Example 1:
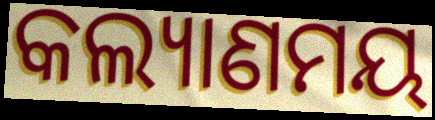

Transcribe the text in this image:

କଲ୍ୟାଣମୟ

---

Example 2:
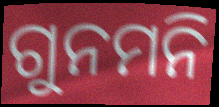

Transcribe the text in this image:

ଗୁନମନି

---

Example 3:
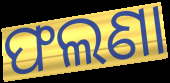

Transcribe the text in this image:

ଫଲଣା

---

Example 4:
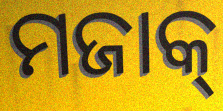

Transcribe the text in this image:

ମଜାକ୍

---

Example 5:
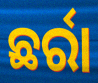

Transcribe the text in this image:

ଛର୍ରା